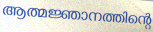
ആത്മജ്ഞാനത്തിന്റെ